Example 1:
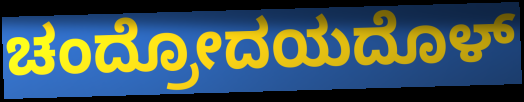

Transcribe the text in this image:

ಚಂದ್ರೋದಯದೊಳ್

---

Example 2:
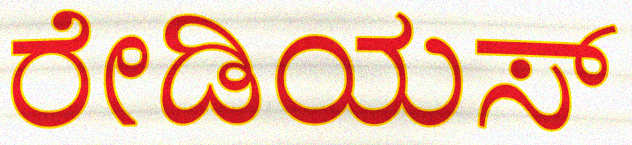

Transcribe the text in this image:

ರೇಡಿಯಸ್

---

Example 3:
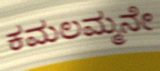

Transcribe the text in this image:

ಕಮಲಮ್ಮನೇ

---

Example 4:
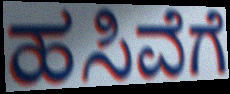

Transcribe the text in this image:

ಹಸಿವೆಗೆ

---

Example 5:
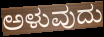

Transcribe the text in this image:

ಅಳುವುದು